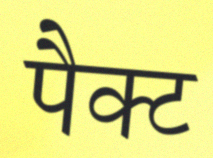
पैक्ट